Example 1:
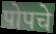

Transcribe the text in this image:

पोपचे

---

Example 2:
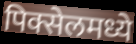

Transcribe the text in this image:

पिक्सेलमध्ये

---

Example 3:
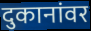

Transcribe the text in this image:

दुकानांवर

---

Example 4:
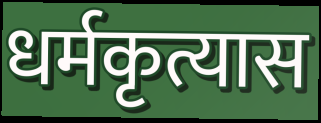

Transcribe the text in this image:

धर्मकृत्यास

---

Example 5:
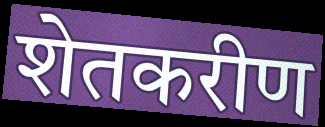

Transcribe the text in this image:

शेतकरीण